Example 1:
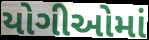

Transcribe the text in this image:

યોગીઓમાં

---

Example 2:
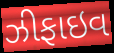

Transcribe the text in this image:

ઝીફાઇવ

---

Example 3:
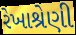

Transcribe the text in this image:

રેખાશ્રેણી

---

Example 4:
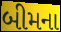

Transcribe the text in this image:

બીમના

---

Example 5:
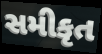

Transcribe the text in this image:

સમીકૃત